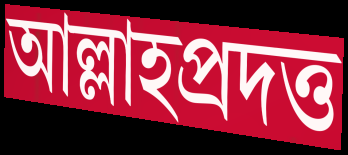
আল্লাহপ্রদত্ত